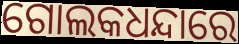
ଗୋଲକଧନ୍ଦାରେ